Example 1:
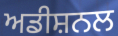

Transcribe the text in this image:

ਅਡੀਸ਼ਨਲ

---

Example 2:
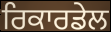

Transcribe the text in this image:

ਰਿਕਾਰਡੇਲ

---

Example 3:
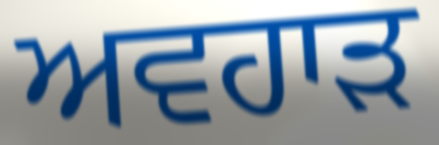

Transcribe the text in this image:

ਅਵਹਾੜ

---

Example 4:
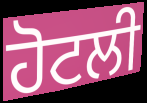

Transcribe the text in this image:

ਹੋਟਲੀ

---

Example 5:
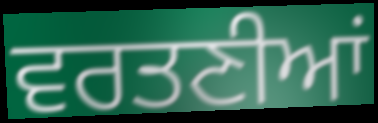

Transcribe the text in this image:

ਵਰਤਣੀਆਂ